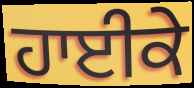
ਹਾਈਕੇ